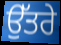
ਉੱਤਰੇ